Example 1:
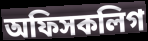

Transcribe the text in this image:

অফিসকলিগ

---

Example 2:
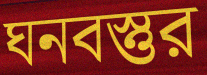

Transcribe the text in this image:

ঘনবস্তুর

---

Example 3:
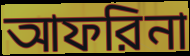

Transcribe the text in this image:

আফরিনা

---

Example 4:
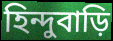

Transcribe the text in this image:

হিন্দুবাড়ি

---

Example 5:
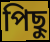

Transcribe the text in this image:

পিছু